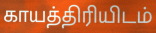
காயத்திரியிடம்